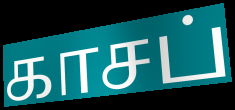
காசப்